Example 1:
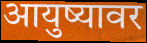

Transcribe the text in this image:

आयुष्यावर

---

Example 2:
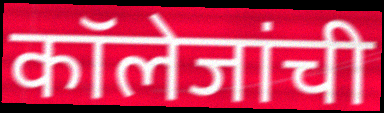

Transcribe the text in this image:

कॉलेजांची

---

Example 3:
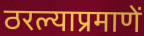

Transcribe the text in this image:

ठरल्याप्रमाणें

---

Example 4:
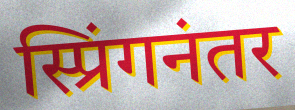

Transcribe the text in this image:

स्प्रिंगनंतर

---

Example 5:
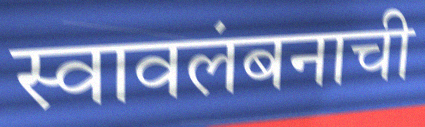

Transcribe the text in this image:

स्वावलंबनाची